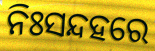
ନିଃସନ୍ଦହରେ